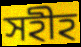
সহীহ